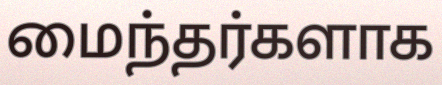
மைந்தர்களாக